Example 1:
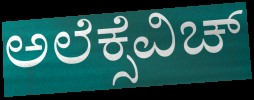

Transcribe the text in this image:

ಅಲೆಕ್ಸೆವಿಚ್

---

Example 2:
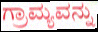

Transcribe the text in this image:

ಗ್ರಾಮ್ಯವನ್ನು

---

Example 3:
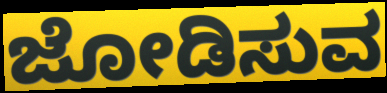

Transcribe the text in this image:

ಜೋಡಿಸುವ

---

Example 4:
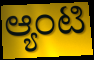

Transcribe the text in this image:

ಆ್ಯಂಟಿ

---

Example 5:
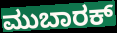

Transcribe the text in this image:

ಮುಬಾರಕ್